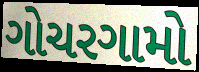
ગોચરગામો